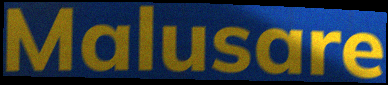
Malusare